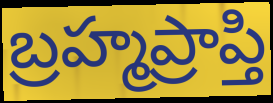
బ్రహ్మప్రాప్తి